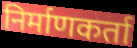
निर्माणकर्ता